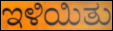
ಇಳಿಯಿತು